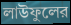
লাউফুলের